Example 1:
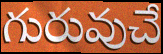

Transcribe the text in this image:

గురువుచే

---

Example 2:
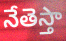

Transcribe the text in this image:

నేతెస్తా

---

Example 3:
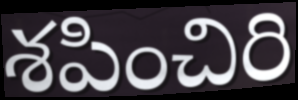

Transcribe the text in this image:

శపించిరి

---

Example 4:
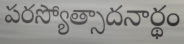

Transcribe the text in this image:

పరస్యోత్సాదనార్థం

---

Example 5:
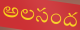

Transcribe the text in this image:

అలసంద